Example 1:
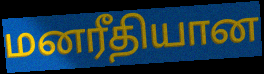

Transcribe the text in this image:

மனரீதியான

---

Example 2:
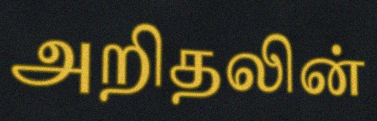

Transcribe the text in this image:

அறிதலின்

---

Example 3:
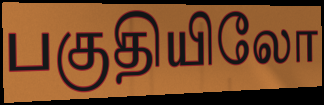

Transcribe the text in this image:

பகுதியிலோ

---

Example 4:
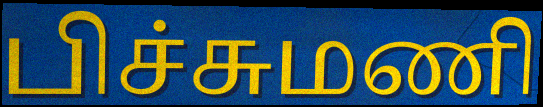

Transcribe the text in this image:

பிச்சுமணி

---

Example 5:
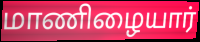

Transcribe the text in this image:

மாணிழையார்